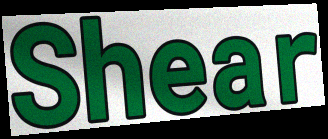
Shear